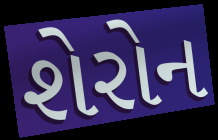
શેરોન